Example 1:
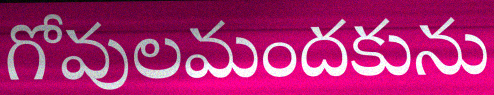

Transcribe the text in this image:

గోవులమందకును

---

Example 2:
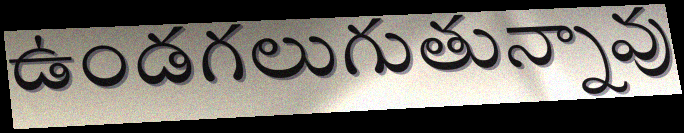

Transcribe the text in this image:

ఉండగలుగుతున్నావు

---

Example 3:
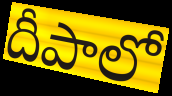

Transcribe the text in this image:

దీపాలో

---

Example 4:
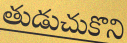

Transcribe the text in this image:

తుడుచుకొని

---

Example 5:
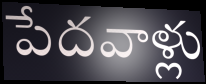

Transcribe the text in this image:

పేదవాళ్లు